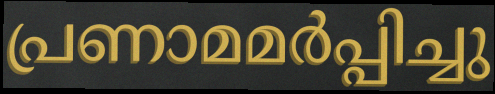
പ്രണാമമർപ്പിച്ചു